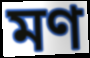
মণ